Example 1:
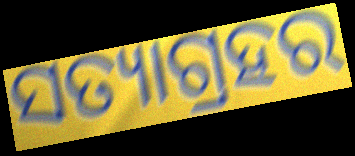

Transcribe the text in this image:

ସତ୍ୟାଗ୍ରହର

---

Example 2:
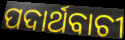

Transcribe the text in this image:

ପଦାର୍ଥବାଚୀ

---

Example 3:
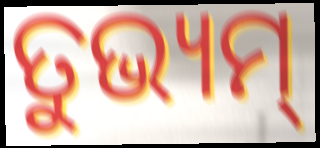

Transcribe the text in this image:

ତୁଭ୍ୟମ୍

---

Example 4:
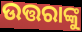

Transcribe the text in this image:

ଉତ୍ତରାଙ୍କୁ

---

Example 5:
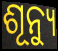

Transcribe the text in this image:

ଶୂନ୍ୟୁ